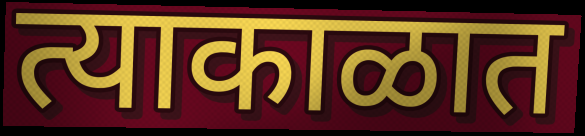
त्याकाळात